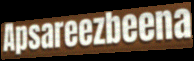
Apsareezbeena